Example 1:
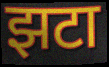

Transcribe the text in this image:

झटा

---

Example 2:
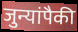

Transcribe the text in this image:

जुन्यांपैकी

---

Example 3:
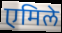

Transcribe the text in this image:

एमिले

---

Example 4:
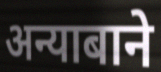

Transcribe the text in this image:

अन्याबाने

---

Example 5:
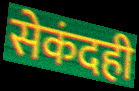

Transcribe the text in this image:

सेकंदही